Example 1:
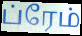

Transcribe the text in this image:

ப்ரேம்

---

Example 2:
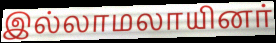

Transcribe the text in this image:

இல்லாமலாயினர்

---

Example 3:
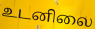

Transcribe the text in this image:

உடனிலை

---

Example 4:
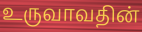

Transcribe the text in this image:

உருவாவதின்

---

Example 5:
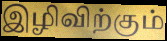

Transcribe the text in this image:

இழிவிற்கும்